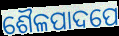
ଶୈଳପାଦପେ